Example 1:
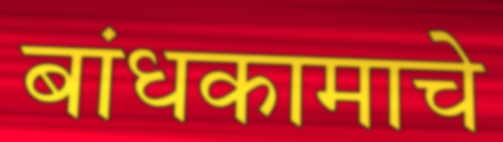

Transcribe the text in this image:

बांधकामाचे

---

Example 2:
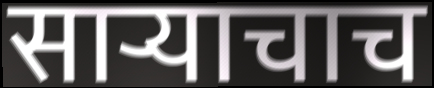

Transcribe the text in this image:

साऱ्याचाच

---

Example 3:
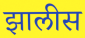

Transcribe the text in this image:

झालीस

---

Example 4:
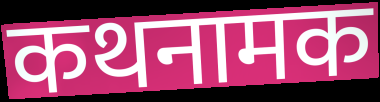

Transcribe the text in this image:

कथनामक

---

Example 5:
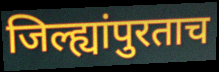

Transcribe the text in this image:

जिल्ह्यांपुरताच